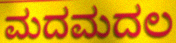
ಮದಮದಲ